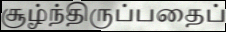
சூழ்ந்திருப்பதைப்